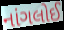
નાંગલોઈ